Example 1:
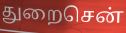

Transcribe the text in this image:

துறைசென்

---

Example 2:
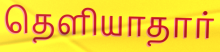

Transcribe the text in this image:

தெளியாதார்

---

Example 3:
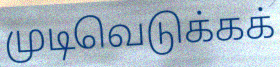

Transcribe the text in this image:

முடிவெடுக்கக்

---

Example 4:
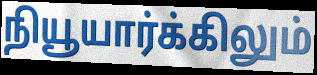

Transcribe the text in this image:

நியூயார்க்கிலும்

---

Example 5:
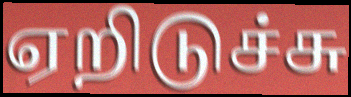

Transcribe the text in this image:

ஏறிடுச்சு